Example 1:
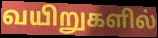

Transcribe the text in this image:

வயிறுகளில்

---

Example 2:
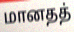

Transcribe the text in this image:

மானதத்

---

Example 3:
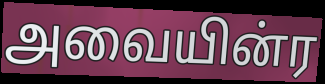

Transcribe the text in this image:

அவையின்ர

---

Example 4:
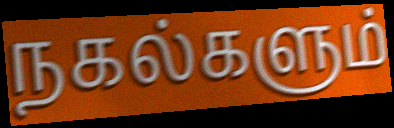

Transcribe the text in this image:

நகல்களும்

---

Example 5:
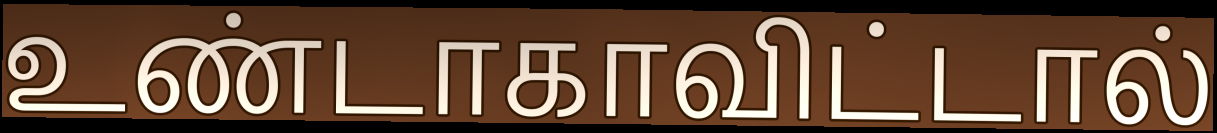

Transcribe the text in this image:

உண்டாகாவிட்டால்